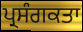
ਪ੍ਰਸੰਗਕਤਾ